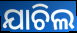
ଯାଚିଲ